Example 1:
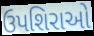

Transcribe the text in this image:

ઉપશિરાઓ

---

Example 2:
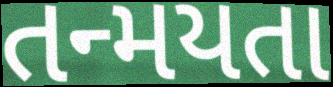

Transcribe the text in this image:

તન્મયતા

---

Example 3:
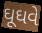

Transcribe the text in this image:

ઘૂઘવે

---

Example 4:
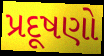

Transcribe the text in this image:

પ્રદૂષણો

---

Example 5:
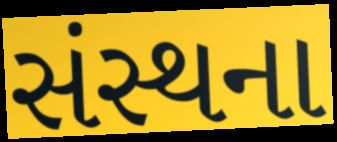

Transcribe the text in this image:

સંસ્થના